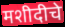
मशीदीचे